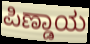
ಪಿಣ್ಡಾಯ